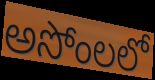
అసోంలలో